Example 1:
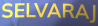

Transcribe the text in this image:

SELVARAJ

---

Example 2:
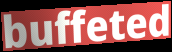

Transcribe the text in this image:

buffeted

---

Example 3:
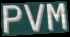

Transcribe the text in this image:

PVM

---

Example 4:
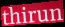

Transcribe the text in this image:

thirun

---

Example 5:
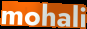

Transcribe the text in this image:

mohali